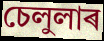
চেলুলাৰ